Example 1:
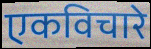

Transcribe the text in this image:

एकविचारे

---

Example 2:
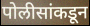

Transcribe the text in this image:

पोलीसांकडून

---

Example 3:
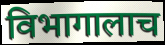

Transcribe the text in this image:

विभागालाच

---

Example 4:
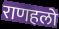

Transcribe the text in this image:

राणहलो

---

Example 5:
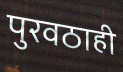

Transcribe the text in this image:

पुरवठाही